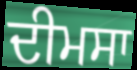
ਦੀਮਸਾ